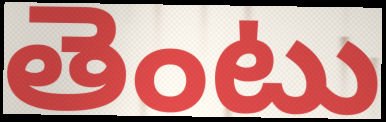
తెంటు